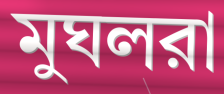
মুঘলরা